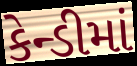
કેન્ડીમાં